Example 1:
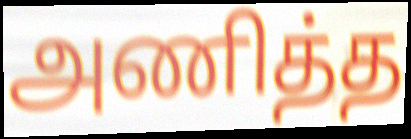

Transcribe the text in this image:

அணித்த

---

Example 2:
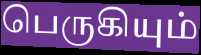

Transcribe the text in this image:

பெருகியும்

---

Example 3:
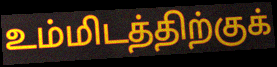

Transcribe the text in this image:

உம்மிடத்திற்குக்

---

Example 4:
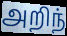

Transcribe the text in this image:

அறிந்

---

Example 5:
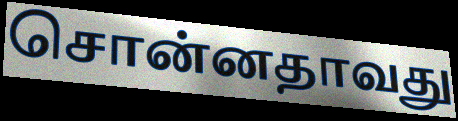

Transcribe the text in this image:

சொன்னதாவது